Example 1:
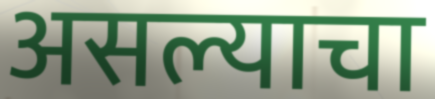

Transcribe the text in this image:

असल्याचा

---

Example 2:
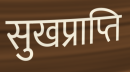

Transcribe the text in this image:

सुखप्राप्ति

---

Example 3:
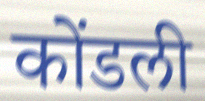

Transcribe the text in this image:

कोंडली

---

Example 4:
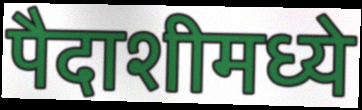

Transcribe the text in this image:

पैदाशीमध्ये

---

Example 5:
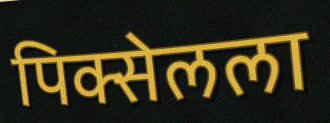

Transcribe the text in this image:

पिक्सेलला